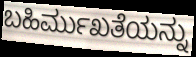
ಬಹಿರ್ಮುಖತೆಯನ್ನು